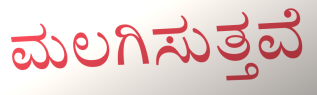
ಮಲಗಿಸುತ್ತವೆ